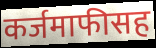
कर्जमाफीसह